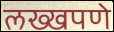
लख्खपणे